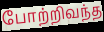
போற்றிவந்த